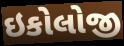
ઇકોલોજી